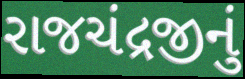
રાજચંદ્રજીનું